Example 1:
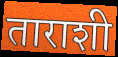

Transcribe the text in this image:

ताराशी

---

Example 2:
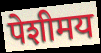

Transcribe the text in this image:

पेशीमय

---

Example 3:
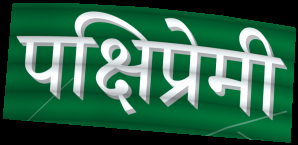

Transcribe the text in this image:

पक्षिप्रेमी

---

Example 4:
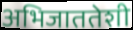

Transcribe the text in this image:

अभिजाततेशी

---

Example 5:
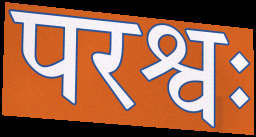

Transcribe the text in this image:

परश्वः